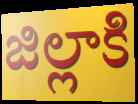
జిల్లాకి